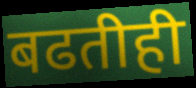
बढतीही